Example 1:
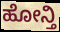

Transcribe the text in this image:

ಹೋನ್ತಿ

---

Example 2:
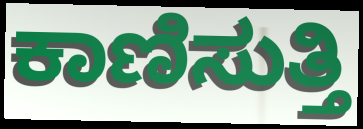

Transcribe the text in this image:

ಕಾಣಿಸುತ್ತಿ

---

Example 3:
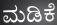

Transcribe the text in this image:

ಮಡಿಕೆ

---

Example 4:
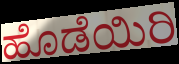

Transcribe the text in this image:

ಹೊಡೆಯಿರಿ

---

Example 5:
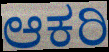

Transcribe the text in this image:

ಆಕರಿ